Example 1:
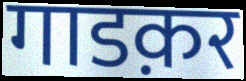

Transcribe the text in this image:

गाडक़र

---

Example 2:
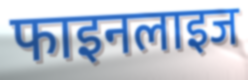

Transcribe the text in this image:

फाइनलाइज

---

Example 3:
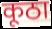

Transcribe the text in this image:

कूठा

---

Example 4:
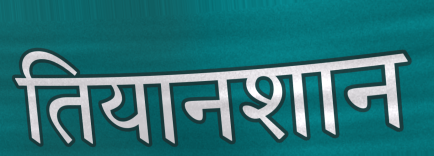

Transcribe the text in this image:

तियानशान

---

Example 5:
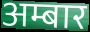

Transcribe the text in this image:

अम्बार